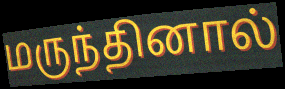
மருந்தினால்